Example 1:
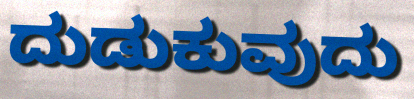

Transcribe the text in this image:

ದುಡುಕುವುದು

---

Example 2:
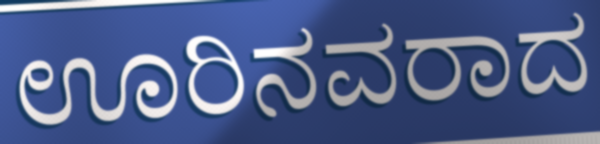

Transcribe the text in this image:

ಊರಿನವರಾದ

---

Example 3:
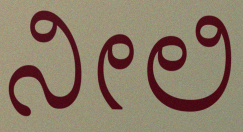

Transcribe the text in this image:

ನೀಲಿ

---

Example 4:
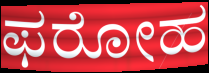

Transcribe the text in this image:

ಫರೋಹ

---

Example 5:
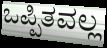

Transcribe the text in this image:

ಒಪ್ಪಿತವಲ್ಲ